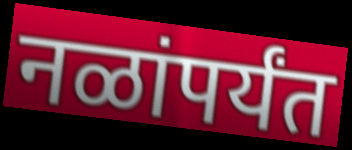
नळांपर्यंत